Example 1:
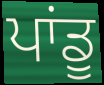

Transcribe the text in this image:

ਪਾਂਡੂ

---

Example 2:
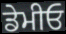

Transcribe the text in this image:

ਡੇਮੀਓ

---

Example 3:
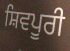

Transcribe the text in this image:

ਸ਼ਿਵਪੂਰੀ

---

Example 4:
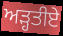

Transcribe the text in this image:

ਅੜ੍ਹਤੀਏ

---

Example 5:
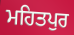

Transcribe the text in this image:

ਮਹਿਤਪੁਰ